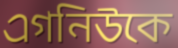
এগনিউকে